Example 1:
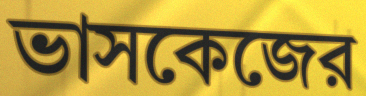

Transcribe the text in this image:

ভাসকেজের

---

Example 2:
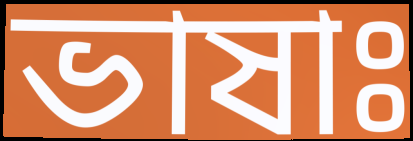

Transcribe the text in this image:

ভাষাঃ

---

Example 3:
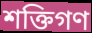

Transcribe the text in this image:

শক্তিগণ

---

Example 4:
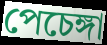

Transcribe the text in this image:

পেচেঙ্গা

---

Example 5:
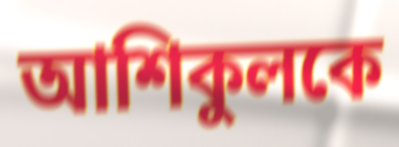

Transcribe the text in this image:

আশিকুলকে